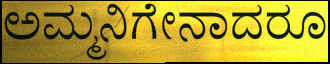
ಅಮ್ಮನಿಗೇನಾದರೂ